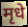
मृधे